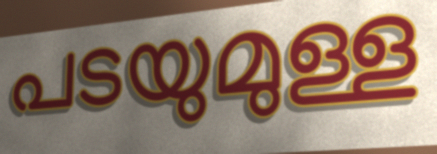
പടയുമുള്ള